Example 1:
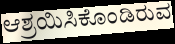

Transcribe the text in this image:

ಆಶ್ರಯಿಸಿಕೊಂಡಿರುವ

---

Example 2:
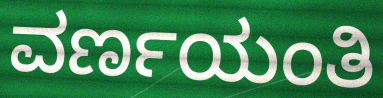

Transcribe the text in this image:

ವರ್ಣಯಂತಿ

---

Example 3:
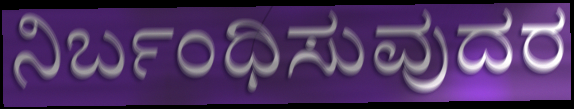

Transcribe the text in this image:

ನಿರ್ಬಂಧಿಸುವುದರ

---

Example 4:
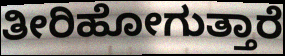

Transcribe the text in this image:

ತೀರಿಹೋಗುತ್ತಾರೆ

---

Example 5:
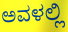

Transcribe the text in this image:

ಅವಳಲ್ಲಿ